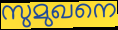
സുമുഖനെ